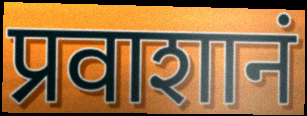
प्रवाशानं